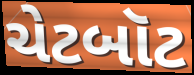
ચેટબૉટ